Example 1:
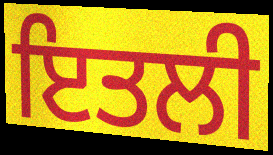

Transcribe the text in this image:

ਇਤਲੀ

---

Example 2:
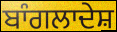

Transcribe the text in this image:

ਬਾੰਗਲਾਦੇਸ਼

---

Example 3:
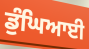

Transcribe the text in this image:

ਡੁੰਘਿਆਈ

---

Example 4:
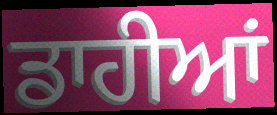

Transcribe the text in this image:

ਡਾਹੀਆਂ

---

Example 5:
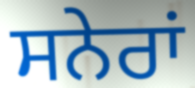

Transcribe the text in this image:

ਸਨੇਰਾਂ